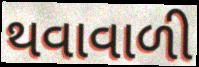
થવાવાળી